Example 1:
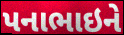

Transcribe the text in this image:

પનાભાઇને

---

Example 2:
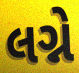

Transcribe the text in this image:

લગ્ને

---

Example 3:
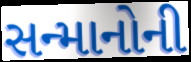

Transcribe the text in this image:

સન્માનોની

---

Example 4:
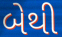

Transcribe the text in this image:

બેથી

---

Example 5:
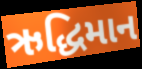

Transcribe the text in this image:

ઋદ્ધિમાન